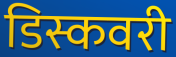
डिस्कवरी